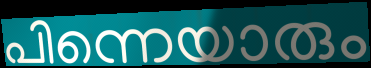
പിന്നെയാരും